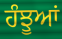
ਹੰਝੂਆਂ